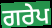
ਗਰੇਪ